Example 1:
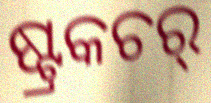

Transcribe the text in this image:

ଷ୍ଟ୍ରକଚର୍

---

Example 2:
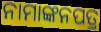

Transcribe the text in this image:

ନାମାଙ୍କନପତ୍ର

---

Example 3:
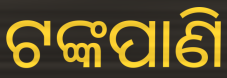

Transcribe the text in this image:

ଟଙ୍କପାଣି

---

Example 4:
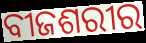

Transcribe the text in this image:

ବୀଜଶରୀର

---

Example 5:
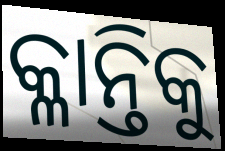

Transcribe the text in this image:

କ୍ଳାନ୍ତିକୁ